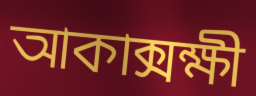
আকাক্সক্ষী